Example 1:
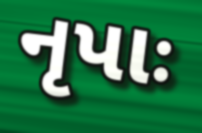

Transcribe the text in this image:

નૃપાઃ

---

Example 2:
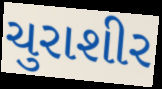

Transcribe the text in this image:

ચુરાશીર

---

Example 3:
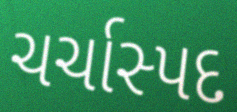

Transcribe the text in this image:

ચર્ચાસ્પદ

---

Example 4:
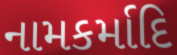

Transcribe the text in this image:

નામકર્માદિ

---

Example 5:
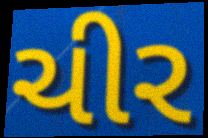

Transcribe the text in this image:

ચીર